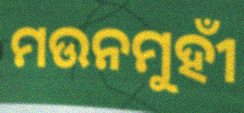
ମଉନମୁହୀଁ